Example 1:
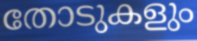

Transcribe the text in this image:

തോടുകളും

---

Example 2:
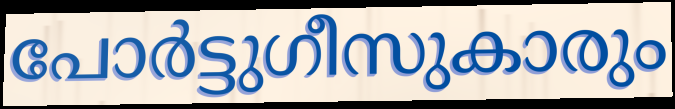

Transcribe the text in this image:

പോർട്ടുഗീസുകാരും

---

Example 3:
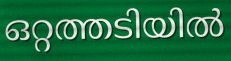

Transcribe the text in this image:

ഒറ്റത്തടിയിൽ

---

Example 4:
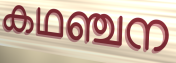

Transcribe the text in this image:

കഥഞ്ചന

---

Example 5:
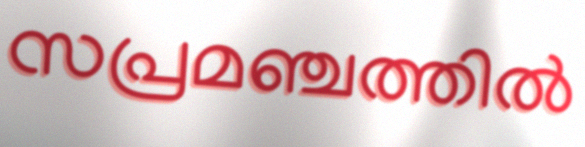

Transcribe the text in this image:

സപ്രമഞ്ചത്തിൽ